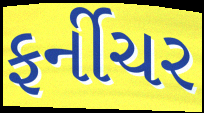
ફર્નીચર